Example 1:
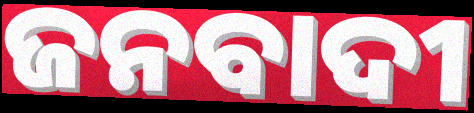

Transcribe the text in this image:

ଜନବାଦୀ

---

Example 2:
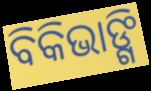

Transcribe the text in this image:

ବିକିଭାଙ୍ଗି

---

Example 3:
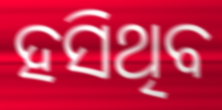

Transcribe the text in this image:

ହସିଥିବ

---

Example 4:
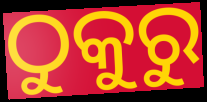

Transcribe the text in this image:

ଠୁକୁରୁ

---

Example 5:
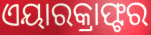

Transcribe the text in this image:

ଏୟାରକ୍ରାଫ୍ଟର